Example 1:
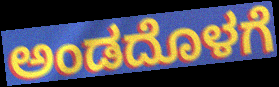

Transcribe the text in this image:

ಅಂಡದೊಳಗೆ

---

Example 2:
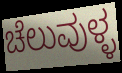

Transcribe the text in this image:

ಚೆಲುವುಳ್ಳ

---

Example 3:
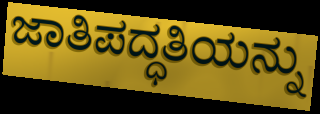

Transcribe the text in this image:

ಜಾತಿಪದ್ಧತಿಯನ್ನು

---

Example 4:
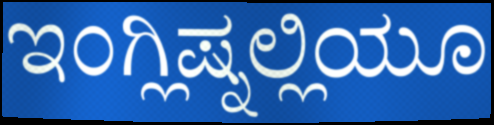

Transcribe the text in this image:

ಇಂಗ್ಲಿಷ್ನಲ್ಲಿಯೂ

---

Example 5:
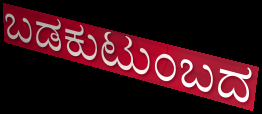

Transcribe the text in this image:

ಬಡಕುಟುಂಬದ